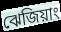
ঝেজিয়াং